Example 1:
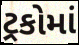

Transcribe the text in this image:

ટ્રકોમાં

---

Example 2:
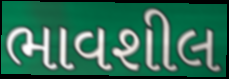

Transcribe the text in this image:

ભાવશીલ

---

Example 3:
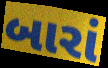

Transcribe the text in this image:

બારાં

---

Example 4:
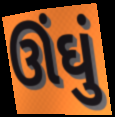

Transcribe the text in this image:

ઊંઘું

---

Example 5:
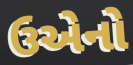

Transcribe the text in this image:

ઉએનો